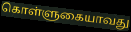
கொள்ளுகையாவது